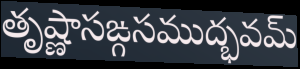
తృష్ణాసఙ్గసముద్భవమ్